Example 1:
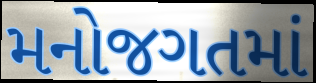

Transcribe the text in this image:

મનોજગતમાં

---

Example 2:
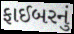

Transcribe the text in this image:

ફાઈબરનું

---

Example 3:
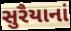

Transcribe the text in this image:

સુરૈયાનાં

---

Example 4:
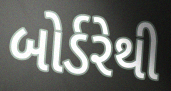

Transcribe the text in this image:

બોર્ડરેથી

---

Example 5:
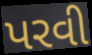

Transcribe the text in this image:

પરવી